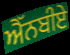
ਐੱਨਬੀਏ